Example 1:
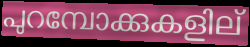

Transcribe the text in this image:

പുറമ്പോക്കുകളില്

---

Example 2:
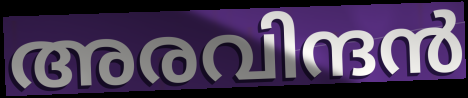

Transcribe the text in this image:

അരവിന്ദൻ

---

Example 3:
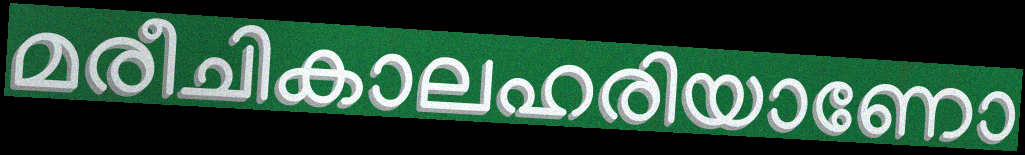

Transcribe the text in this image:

മരീചികാലഹരിയാണോ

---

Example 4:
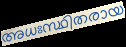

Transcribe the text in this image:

അധഃസ്ഥിതരായ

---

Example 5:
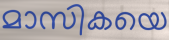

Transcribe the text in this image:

മാസികയെ